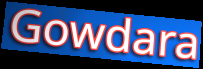
Gowdara